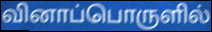
வினாப்பொருளில்